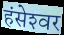
हंसेश्वर